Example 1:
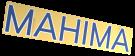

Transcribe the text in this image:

MAHIMA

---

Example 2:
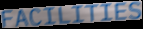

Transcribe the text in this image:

FACILITIES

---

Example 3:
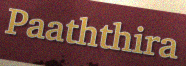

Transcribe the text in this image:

Paaththira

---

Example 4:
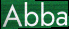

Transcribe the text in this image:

Abba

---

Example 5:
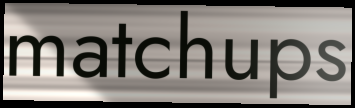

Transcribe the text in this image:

matchups